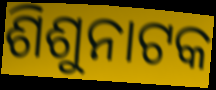
ଶିଶୁନାଟକ